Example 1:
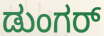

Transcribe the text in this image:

ಡುಂಗರ್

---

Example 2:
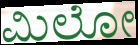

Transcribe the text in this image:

ಮಿಲೋ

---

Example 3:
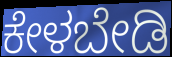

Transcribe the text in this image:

ಕೇಳಬೇಡಿ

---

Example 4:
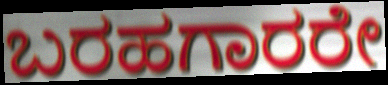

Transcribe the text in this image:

ಬರಹಗಾರರೇ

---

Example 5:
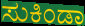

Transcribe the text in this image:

ಸುಕಿಂಡಾ